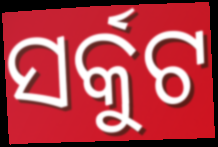
ସର୍କୁଟ